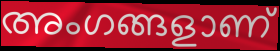
അംഗങ്ങളാണ്